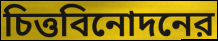
চিত্তবিনোদনের